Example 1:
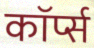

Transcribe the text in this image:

कॉर्प्स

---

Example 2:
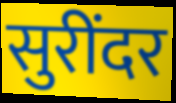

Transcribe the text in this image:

सुरींदर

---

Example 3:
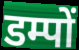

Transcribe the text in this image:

डम्पों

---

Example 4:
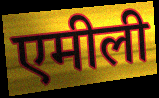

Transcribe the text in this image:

एमीली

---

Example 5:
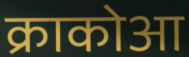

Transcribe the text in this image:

क्राकोआ